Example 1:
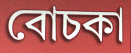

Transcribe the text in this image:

বোচকা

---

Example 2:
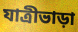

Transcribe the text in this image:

যাত্রীভাড়া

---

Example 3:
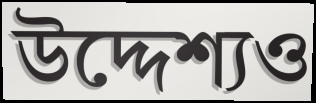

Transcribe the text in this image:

উদ্দেশ্যও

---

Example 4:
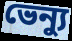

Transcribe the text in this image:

ভেন্যু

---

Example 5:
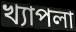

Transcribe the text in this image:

খ্যাপলা